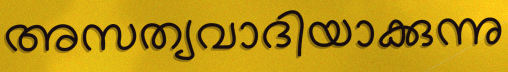
അസത്യവാദിയാക്കുന്നു